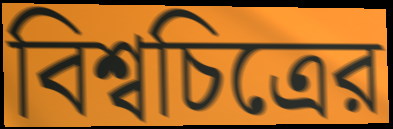
বিশ্বচিত্রের